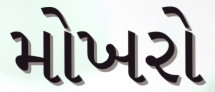
મોખરો